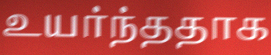
உயர்ந்ததாக